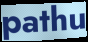
pathu